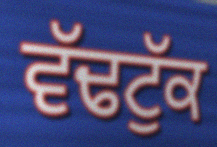
ਵੱਢਟੁੱਕ